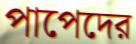
পাপেদের